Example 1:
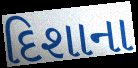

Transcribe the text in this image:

દિશાના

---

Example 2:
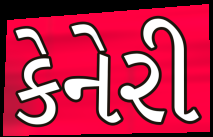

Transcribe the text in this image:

કેનેરી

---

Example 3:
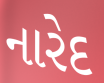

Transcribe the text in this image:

નારેદ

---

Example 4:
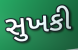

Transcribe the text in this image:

સુખકી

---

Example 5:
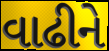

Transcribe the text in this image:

વાઢીને